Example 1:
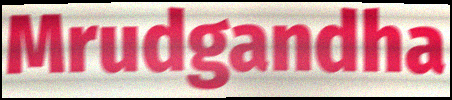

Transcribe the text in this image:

Mrudgandha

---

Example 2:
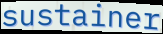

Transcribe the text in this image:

sustainer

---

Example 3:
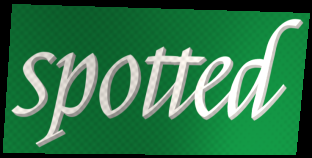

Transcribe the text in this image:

spotted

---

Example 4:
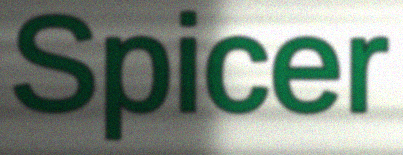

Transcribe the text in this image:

Spicer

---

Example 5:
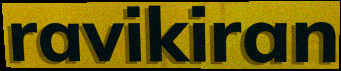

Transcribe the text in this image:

ravikiran